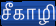
சீகாழி